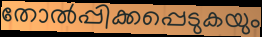
തോൽപ്പിക്കപ്പെടുകയും